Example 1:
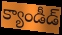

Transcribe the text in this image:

క్యాండీడ్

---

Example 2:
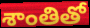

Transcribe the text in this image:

శాంతితో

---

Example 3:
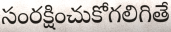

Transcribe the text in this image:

సంరక్షించుకోగలిగితే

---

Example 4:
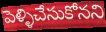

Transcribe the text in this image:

పెళ్ళిచేసుకోనని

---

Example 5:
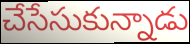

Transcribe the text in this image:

చేసేసుకున్నాడు